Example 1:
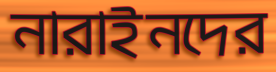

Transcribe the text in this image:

নারাইনদের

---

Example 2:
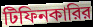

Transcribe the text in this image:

টিফিনকারির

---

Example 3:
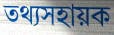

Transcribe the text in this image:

তথ্যসহায়ক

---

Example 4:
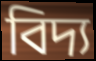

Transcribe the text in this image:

বিদ্য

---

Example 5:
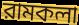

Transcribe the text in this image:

রামকলা